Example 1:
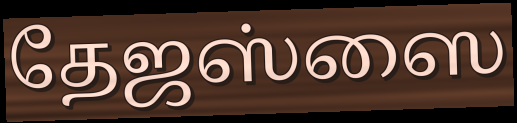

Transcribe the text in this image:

தேஜஸ்ஸை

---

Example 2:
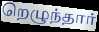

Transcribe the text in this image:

றெழுந்தார்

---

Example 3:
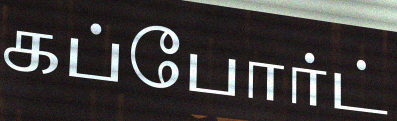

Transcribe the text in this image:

கப்போர்ட்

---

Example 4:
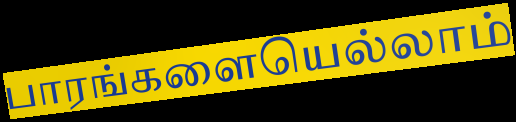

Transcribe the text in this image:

பாரங்களையெல்லாம்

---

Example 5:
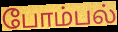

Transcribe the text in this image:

போம்பல்